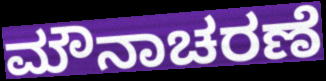
ಮೌನಾಚರಣೆ